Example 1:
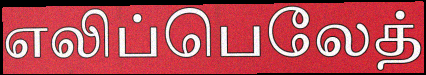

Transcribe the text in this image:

எலிப்பெலேத்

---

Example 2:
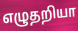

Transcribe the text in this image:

எழுதறியா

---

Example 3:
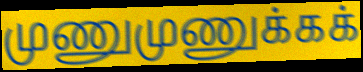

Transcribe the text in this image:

முணுமுணுக்கக்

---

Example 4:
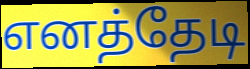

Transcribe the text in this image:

எனத்தேடி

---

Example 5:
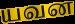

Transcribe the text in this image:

யவன